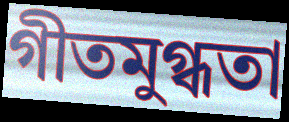
গীতমুগ্ধতা